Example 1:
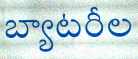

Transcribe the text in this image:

బ్యాటరీల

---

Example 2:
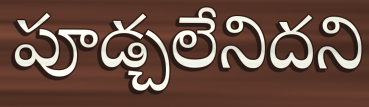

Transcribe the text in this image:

పూడ్చలేనిదని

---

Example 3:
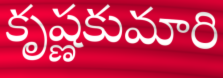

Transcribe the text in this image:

కృష్ణకుమారి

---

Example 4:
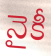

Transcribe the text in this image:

నైకీ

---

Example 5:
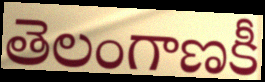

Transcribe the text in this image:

తెలంగాణకీ